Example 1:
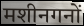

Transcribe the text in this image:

मशीनगनों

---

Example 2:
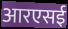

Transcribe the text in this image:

आरएसई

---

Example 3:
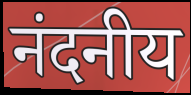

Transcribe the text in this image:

नंदनीय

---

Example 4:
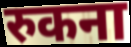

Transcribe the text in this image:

रुकना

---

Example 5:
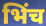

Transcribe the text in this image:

भिंच